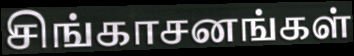
சிங்காசனங்கள்